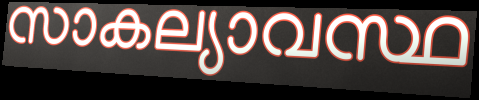
സാകല്യാവസ്ഥ